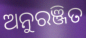
ଅନୁରଞ୍ଜିତ